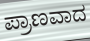
ಪ್ರಾಣವಾದ